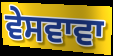
ਵੇਸਵਾਵਾ